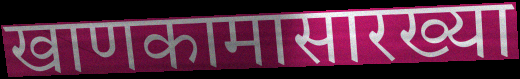
खाणकामासारख्या